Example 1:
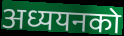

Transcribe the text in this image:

अध्ययनको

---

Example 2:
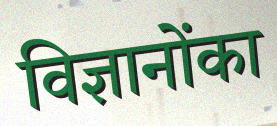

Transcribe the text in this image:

विज्ञानोंका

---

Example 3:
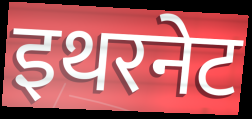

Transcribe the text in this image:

इथरनेट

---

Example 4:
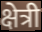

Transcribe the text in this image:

क्षेत्री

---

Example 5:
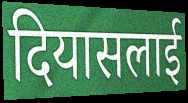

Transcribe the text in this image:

दियासलाई